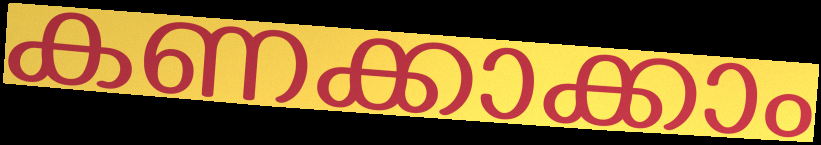
കണക്കാക്കാം